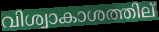
വിശ്വാകാശത്തില്